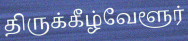
திருக்கீழ்வேளூர்